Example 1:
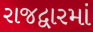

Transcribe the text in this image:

રાજદ્વારમાં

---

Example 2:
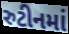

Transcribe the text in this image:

રુટીનમાં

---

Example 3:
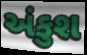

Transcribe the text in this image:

અંકુશ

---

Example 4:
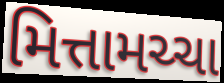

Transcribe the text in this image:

મિત્તામચ્ચા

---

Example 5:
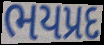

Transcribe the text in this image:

ભયપ્રદ